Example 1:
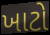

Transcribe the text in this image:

ખાટો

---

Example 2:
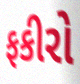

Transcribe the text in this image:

ફકીરો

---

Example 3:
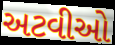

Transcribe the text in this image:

અટવીઓ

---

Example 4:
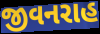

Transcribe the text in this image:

જીવનરાહ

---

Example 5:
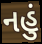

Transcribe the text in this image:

નહું